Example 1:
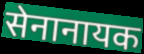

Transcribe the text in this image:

सेनानायक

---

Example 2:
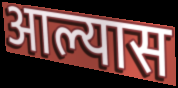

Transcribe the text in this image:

आल्यास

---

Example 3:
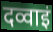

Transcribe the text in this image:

दव्वाइं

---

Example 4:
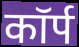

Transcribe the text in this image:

कॉर्प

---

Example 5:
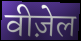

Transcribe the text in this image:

वीज़ेल